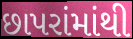
છાપરાંમાંથી